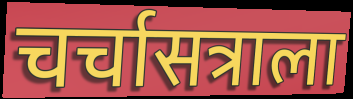
चर्चासत्राला